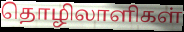
தொழிலாளிகள்